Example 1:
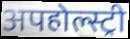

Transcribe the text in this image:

अपहोल्स्ट्री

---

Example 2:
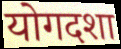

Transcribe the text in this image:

योगदशा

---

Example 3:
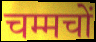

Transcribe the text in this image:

चम्मचों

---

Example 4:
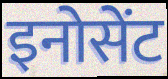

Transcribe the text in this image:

इनोसेंट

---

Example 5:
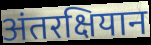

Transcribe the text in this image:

अंतरक्षियान